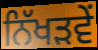
ਨਿੱਖੜਵੇਂ